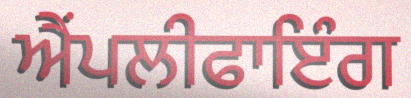
ਐਂਪਲੀਫਾਇੰਗ